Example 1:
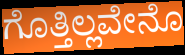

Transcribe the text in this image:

ಗೊತ್ತಿಲ್ಲವೇನೊ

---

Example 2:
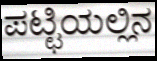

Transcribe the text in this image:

ಪಟ್ಟಿಯಲ್ಲಿನ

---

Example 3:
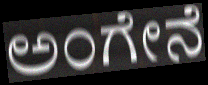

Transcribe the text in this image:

ಅಂಗೇನೆ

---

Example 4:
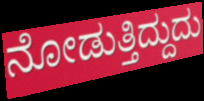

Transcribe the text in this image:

ನೋಡುತ್ತಿದ್ದುದು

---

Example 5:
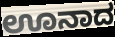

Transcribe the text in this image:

ಊನಾದ